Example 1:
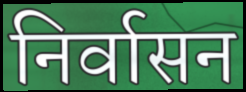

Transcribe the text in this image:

निर्वासन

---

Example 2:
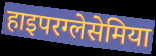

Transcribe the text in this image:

हाइपरग्लेसेमिया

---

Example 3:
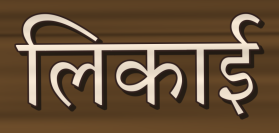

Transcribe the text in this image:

लिकाई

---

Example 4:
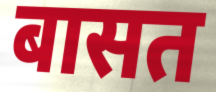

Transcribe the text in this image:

बासत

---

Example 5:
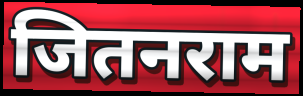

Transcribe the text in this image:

जितनराम